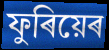
ফুৰিয়েৰ